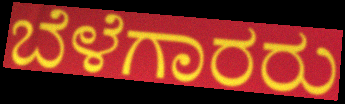
ಬೆಳೆಗಾರರು